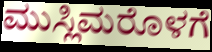
ಮುಸ್ಲಿಮರೊಳಗೆ